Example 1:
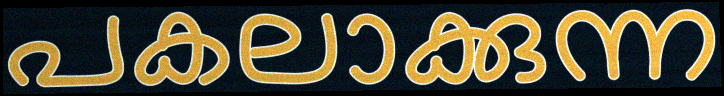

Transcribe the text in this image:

പകലാക്കുന്ന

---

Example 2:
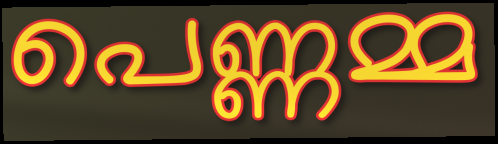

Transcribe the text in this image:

പെണ്ണമ്മ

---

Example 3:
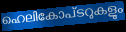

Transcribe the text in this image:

ഹെലികോപ്ടറുകളും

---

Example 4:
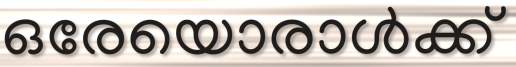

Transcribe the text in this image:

ഒരേയൊരാൾക്ക്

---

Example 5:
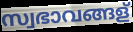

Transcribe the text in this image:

സ്വഭാവങ്ങള്